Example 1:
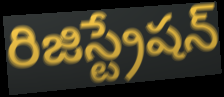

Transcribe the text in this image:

రిజిస్ట్రేషన్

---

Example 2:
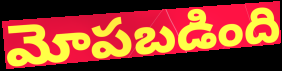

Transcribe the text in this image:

మోపబడింది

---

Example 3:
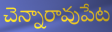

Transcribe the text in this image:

చెన్నారావుపేట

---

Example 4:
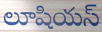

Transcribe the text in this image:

లూషియస్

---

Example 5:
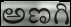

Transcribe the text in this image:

అణగి